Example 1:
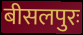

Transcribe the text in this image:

बीसलपुरः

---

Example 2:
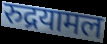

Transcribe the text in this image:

रुद्रयामल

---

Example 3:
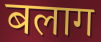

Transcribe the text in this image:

बलाग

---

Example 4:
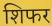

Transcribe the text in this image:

शिफर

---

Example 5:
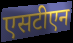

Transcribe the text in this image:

एसटीएन